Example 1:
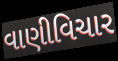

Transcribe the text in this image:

વાણીવિચાર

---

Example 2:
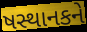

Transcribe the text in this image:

ષસ્થાનકને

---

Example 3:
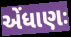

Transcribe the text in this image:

એંધાણઃ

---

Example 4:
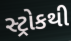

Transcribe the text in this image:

સ્ટ્રોકથી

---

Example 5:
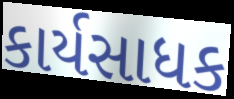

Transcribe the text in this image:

કાર્યસાધક